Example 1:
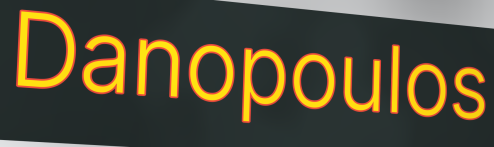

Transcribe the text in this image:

Danopoulos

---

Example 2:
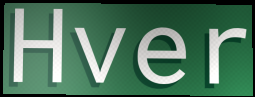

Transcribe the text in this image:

Hver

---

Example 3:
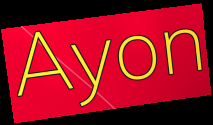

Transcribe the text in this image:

Ayon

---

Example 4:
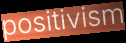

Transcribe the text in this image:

positivism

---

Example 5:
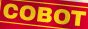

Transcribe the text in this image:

COBOT